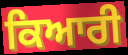
ਕਿਆਰੀ